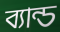
ব্যান্ড